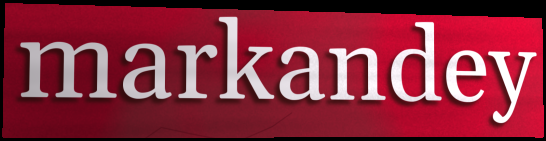
markandey